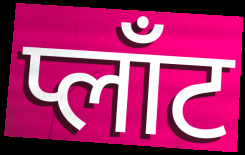
प्लाँट